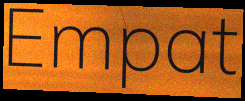
Empat